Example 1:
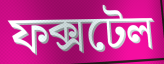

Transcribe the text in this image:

ফক্সটেল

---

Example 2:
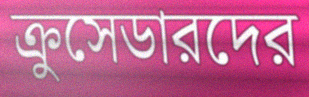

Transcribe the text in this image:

ক্রুসেডারদের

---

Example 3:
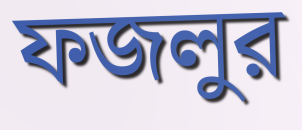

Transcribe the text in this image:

ফজলুর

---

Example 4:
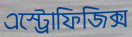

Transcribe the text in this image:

এস্ট্রোফিজিক্স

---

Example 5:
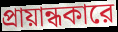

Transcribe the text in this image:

প্রায়ান্ধকারে